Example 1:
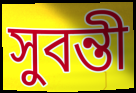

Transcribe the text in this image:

সুবন্তী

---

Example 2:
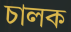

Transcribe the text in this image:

চালক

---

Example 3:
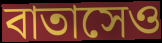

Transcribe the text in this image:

বাতাসেও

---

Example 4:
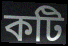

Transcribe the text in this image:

কটি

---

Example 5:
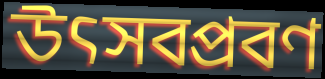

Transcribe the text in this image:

উৎসবপ্রবণ